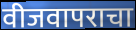
वीजवापराचा